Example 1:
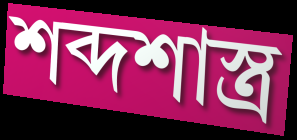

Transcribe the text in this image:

শব্দশাস্ত্র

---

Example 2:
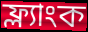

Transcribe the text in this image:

ফ্ল্যাংক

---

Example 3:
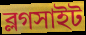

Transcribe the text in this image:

ব্লগসাইট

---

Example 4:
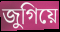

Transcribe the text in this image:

জুগিয়ে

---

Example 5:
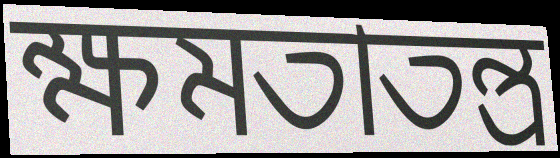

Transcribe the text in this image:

ক্ষমতাতন্ত্র